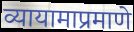
व्यायामाप्रमाणे